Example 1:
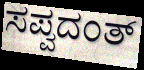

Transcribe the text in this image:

ಸಪ್ವದಂತ್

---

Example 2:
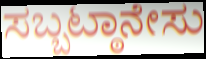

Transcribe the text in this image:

ಸಬ್ಬಟ್ಠಾನೇಸು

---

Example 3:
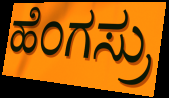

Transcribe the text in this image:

ಹೆಂಗಸ್ರು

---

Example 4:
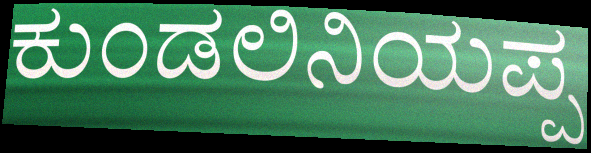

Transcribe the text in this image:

ಕುಂಡಲಿನಿಯಪ್ಪ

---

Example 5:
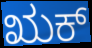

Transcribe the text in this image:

ಋಕ್